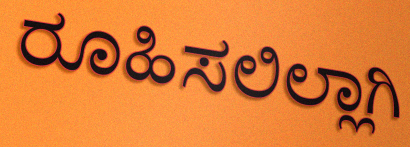
ರೂಹಿಸಲಿಲ್ಲಾಗಿ